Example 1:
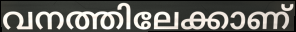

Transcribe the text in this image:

വനത്തിലേക്കാണ്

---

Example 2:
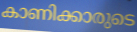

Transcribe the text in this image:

കാണിക്കാരുടെ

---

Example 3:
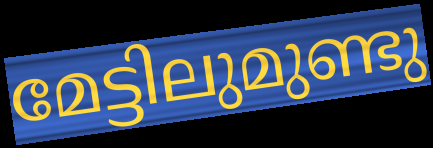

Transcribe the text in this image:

മേട്ടിലുമുണ്ടു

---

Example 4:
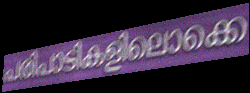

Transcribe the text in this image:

പരിപാടികളിലൊക്കെ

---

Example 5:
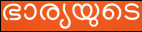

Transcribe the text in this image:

ഭാര്യയുടെ